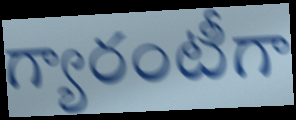
గ్యారంటీగా